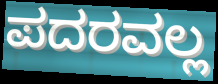
ಪದರವಲ್ಲ